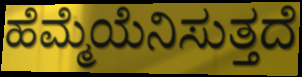
ಹೆಮ್ಮೆಯೆನಿಸುತ್ತದೆ